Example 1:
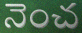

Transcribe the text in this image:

నెంచ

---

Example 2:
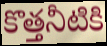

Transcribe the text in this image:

కొత్తనీటికి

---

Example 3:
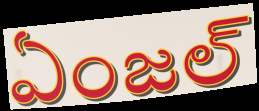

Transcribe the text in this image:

ఏంజల్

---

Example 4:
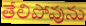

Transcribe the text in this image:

తేలిపోవును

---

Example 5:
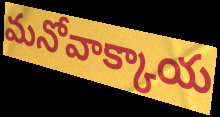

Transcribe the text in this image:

మనోవాక్కాయ